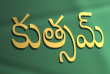
కుత్సమ్